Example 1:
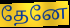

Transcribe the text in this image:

தேனே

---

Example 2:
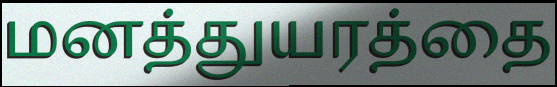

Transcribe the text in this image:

மனத்துயரத்தை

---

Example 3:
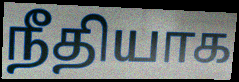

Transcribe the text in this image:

நீதியாக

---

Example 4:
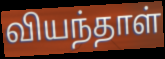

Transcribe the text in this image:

வியந்தாள்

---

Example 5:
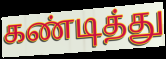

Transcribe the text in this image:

கண்டித்து